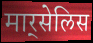
मार्सेलिस